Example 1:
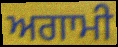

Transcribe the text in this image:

ਅਗਾਮੀ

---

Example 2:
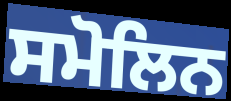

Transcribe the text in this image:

ਸਮੋਲਿਨ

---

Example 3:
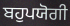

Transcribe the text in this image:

ਬਹੁਪਯੋਗੀ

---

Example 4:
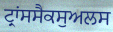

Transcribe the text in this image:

ਟ੍ਰਾਂਸਸੈਕਸੁਅਲਸ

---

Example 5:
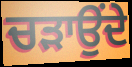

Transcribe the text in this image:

ਚੜਾਉਂਦੇ